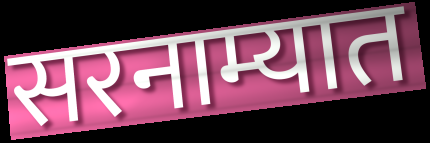
सरनाम्यात